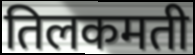
तिलकमती